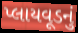
પ્લાયવૂડનું